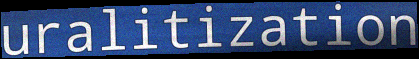
uralitization